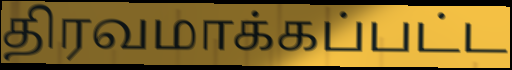
திரவமாக்கப்பட்ட